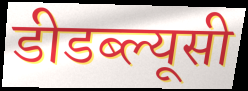
डीडब्ल्यूसी